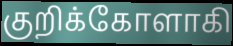
குறிக்கோளாகி